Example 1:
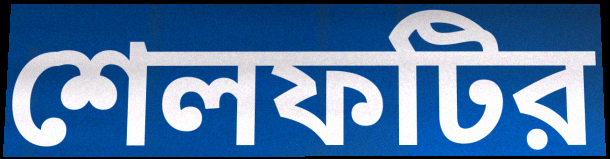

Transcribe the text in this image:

শেলফটির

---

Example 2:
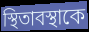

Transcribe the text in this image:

স্থিতাবস্থাকে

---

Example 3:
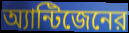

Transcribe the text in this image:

অ্যান্টিজেনের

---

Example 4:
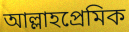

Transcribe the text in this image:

আল্লাহপ্রেমিক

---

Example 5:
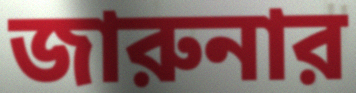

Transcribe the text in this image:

জারুনার